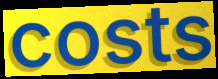
costs